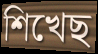
শিখেছ